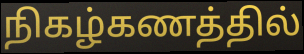
நிகழ்கணத்தில்